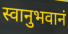
स्वानुभवानं